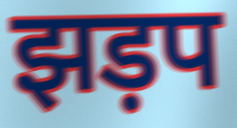
झड़प